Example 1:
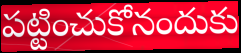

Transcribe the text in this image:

పట్టించుకోనందుకు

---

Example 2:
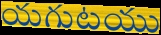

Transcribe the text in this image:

యగుటయు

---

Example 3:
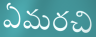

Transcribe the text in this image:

ఏమరచి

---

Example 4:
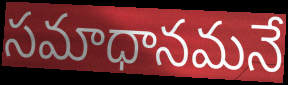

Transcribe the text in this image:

సమాధానమనే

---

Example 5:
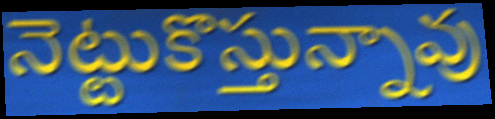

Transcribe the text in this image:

నెట్టుకొస్తున్నావు